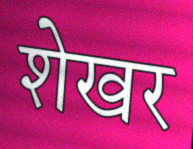
शेखर